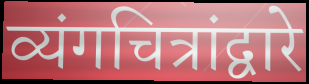
व्यंगचित्रांद्वारे